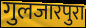
गुलजारपुरा